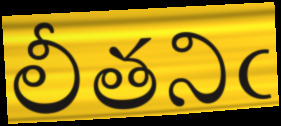
లీతనిఁ